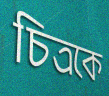
চিত্ৰকে